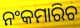
ନଂକମାରିଚ